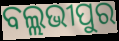
ବଲ୍ଲଭୀପୁର